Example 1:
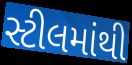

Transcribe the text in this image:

સ્ટીલમાંથી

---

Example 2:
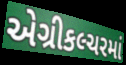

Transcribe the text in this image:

એગ્રીકલ્ચરમાં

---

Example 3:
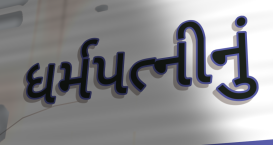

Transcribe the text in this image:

ધર્મપત્નીનું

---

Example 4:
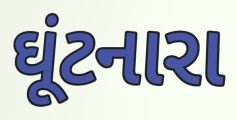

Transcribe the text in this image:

ઘૂંટનારા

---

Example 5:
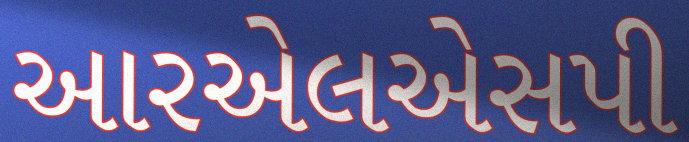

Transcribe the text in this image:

આરએલએસપી